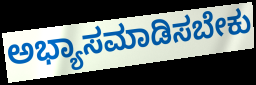
ಅಭ್ಯಾಸಮಾಡಿಸಬೇಕು